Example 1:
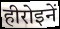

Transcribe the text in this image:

हीरोइनें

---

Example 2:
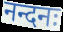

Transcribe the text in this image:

नन्दनः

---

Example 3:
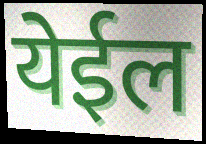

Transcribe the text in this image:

येईल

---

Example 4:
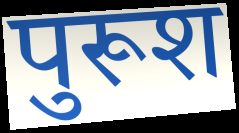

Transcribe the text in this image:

पुरूश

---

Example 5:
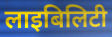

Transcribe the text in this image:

लाइबिलिटी